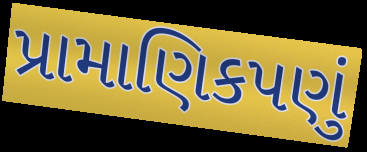
પ્રામાણિકપણું